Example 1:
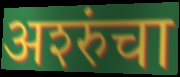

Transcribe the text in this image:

अश्रुंचा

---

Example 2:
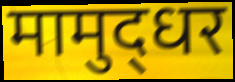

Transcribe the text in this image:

मामुद्धर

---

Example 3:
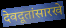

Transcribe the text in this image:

देवदूतांसारखे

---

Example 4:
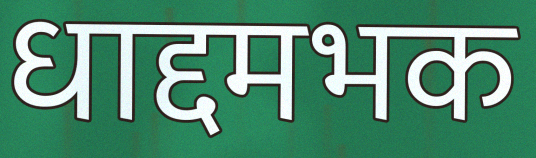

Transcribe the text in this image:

धाद्दमभक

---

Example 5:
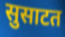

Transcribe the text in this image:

सुसाटत